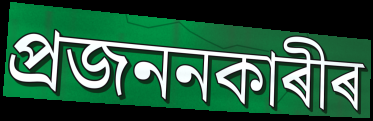
প্ৰজননকাৰীৰ